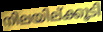
നിലയില്ക്കൂടി